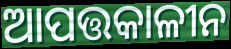
ଆପତ୍ତକାଳୀନ